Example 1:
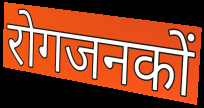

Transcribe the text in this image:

रोगजनकों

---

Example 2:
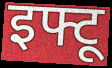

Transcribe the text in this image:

इफ्टू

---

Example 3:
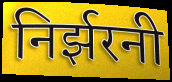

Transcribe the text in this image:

निर्झरनी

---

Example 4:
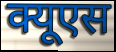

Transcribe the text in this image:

क्यूएस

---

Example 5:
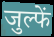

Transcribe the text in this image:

जुल्फें